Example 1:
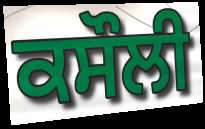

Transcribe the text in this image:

ਕਸੌਲੀ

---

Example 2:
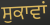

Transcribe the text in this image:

ਸੁਕਾਵਾਂ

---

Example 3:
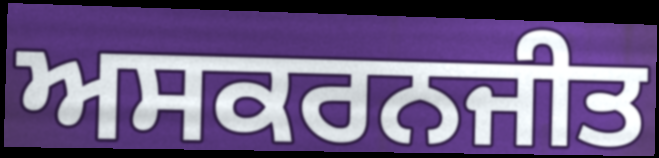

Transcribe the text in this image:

ਅਸਕਰਨਜੀਤ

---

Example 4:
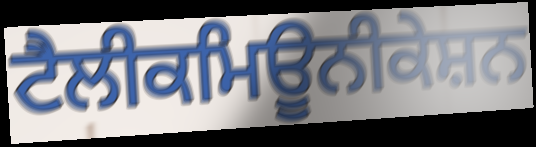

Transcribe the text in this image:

ਟੈਲੀਕਮਿਊਨੀਕੇਸ਼ਨ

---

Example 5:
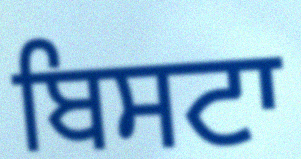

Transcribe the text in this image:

ਬਿਸਟਾ